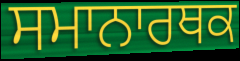
ਸਮਾਨਾਰਥਕ